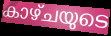
കാഴ്‌ചയുടെ